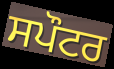
ਸਪੌਟਰ